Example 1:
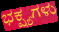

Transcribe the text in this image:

ಭಕ್ಷ್ಯಗಳು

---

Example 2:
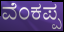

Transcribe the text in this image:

ವೆಂಕಪ್ಪ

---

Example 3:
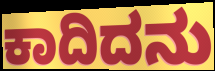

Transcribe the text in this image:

ಕಾದಿದನು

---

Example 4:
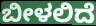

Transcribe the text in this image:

ಬೀಳಲಿದೆ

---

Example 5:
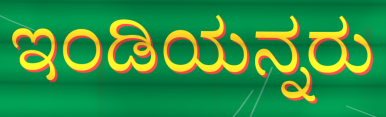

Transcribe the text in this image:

ಇಂಡಿಯನ್ನರು